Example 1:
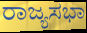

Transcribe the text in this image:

ರಾಜ್ಯಸಭಾ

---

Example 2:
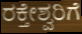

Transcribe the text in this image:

ರಕ್ತೇಶ್ವರಿಗೆ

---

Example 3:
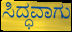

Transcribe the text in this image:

ಸಿದ್ಧವಾಗು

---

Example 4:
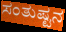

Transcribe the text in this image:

ಸಂತುಷ್ಟನ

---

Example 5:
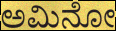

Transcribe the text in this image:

ಅಮಿನೋ